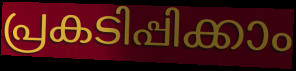
പ്രകടിപ്പിക്കാം